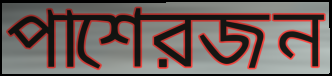
পাশেরজন